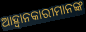
ଆହ୍ଵାନକାରୀମାନଙ୍କ